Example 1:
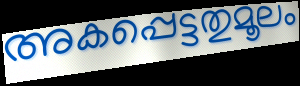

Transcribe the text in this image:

അകപ്പെട്ടതുമൂലം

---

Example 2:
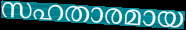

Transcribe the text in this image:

സഹതാരമായ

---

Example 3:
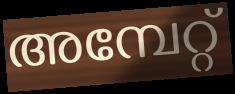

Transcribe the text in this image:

അമ്പേറ്റ്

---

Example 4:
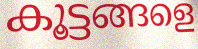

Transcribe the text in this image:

കൂട്ടങ്ങളെ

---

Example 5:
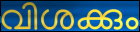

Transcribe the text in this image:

വിശക്കും